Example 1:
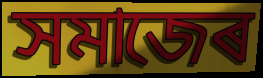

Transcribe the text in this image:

সমাজেৰ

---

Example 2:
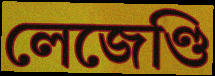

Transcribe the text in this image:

লেজেণ্ডি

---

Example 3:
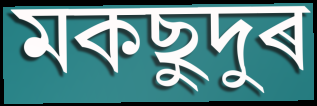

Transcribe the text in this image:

মকছুদুৰ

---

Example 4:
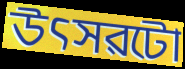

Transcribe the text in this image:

উৎসৱটো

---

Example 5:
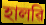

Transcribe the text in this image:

হালৱি